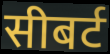
सीबर्ट